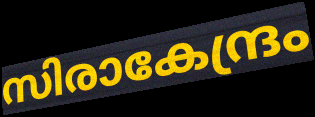
സിരാകേന്ദ്രം